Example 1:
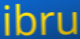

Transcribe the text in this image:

ibru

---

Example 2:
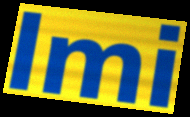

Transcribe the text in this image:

Imi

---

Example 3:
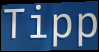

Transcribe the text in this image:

Tipp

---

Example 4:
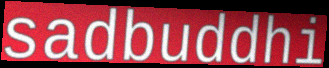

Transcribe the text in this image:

sadbuddhi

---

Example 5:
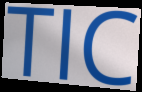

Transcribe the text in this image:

TIC